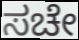
ಸಚೇ